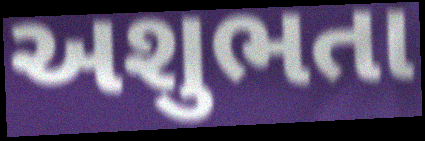
અશુભતા